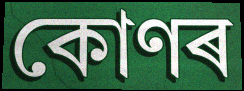
কোণৰ